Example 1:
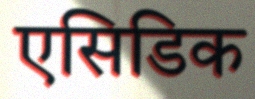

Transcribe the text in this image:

एसिडिक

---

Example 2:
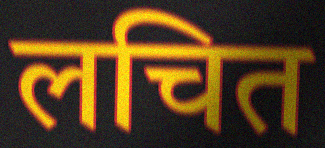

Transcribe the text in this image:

लचित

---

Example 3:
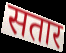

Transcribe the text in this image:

सतार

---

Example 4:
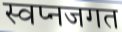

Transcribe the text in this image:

स्वप्नजगत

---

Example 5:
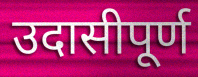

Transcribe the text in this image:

उदासीपूर्ण